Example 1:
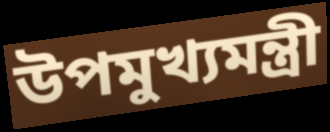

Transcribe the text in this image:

উপমুখ্যমন্ত্রী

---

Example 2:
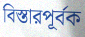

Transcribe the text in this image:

বিস্তারপূর্বক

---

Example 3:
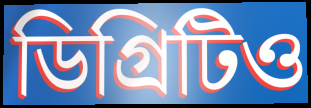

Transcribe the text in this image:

ডিগ্রিটিও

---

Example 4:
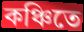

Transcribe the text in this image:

কঞ্চিতে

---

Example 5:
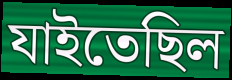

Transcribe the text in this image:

যাইতেছিল